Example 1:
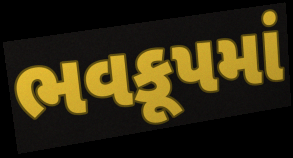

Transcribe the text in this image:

ભવકૂપમાં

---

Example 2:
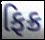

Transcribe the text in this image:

ફિક્ર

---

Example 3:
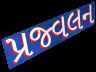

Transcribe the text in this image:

પ્રજ્વલન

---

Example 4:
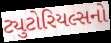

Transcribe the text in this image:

ટ્યુટોરિયલ્સનો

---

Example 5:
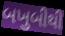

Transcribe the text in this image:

બખુબીથી